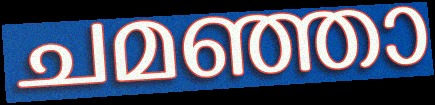
ചമഞ്ഞാ